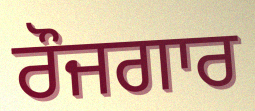
ਰੌਜਗਾਰ